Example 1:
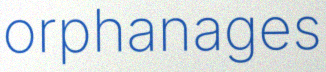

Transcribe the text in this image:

orphanages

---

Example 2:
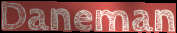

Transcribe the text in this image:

Daneman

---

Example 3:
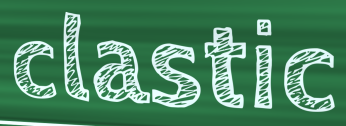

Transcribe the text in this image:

clastic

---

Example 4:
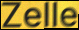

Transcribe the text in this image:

Zelle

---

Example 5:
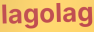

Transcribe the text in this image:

lagolag